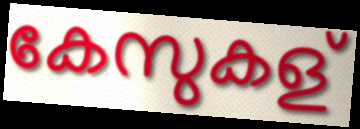
കേസുകള്